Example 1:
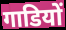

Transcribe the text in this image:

गाडियों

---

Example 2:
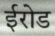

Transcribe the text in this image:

ईरोड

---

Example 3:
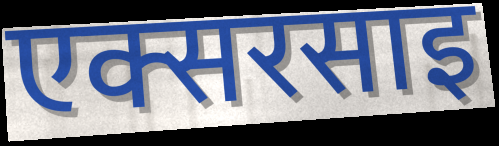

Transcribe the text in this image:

एक्सरसाइ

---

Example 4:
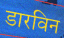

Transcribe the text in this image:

डारविन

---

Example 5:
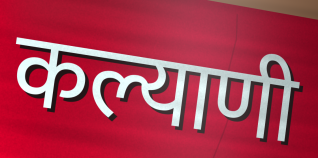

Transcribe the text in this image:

कल्याणी